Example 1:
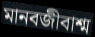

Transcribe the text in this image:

মানবজীবাশ্ম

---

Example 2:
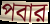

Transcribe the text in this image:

পবার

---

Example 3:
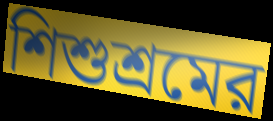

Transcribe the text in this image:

শিশুশ্রমের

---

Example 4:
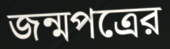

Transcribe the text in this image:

জন্মপত্রের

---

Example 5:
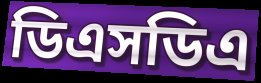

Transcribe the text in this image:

ডিএসডিএ